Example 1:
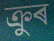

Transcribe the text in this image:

ক্ৰুৰ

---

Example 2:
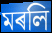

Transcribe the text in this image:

মৰলি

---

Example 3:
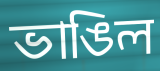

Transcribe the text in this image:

ভাঙিল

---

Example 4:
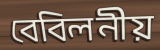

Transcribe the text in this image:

বেবিলনীয়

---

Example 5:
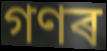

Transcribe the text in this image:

গণৰ